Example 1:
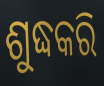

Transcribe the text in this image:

ଶୁଦ୍ଧକରି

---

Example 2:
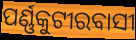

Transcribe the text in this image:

ପର୍ଣ୍ଣକୁଟୀରବାସୀ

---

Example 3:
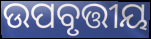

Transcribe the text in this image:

ଉପବୃତ୍ତୀୟ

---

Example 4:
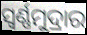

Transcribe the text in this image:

ସ୍ୱର୍ଣ୍ଣମୁଦ୍ରାର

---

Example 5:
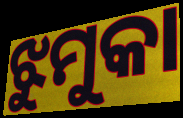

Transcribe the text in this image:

ଝୁମୁକା